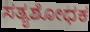
ಸತ್ಯಶೋಧಕ